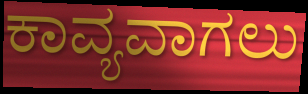
ಕಾವ್ಯವಾಗಲು